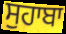
ਸੁਹਾਬਾ